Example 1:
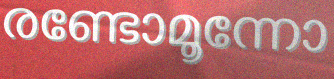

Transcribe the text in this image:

രണ്ടോമൂന്നോ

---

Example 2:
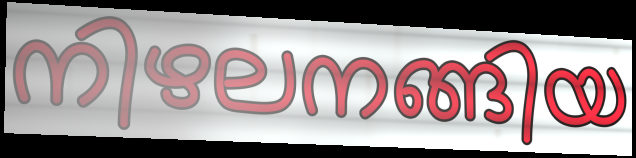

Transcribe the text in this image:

നിഴലനങ്ങിയ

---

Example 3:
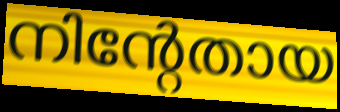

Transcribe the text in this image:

നിന്റേതായ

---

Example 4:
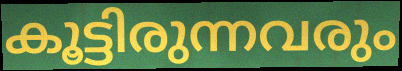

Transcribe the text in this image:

കൂട്ടിരുന്നവരും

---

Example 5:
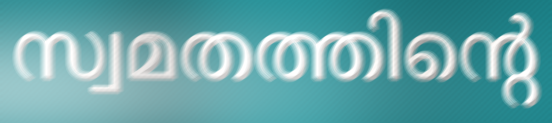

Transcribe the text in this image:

സ്വമതത്തിന്റെ